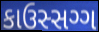
કાઉસ્સગ્ગ